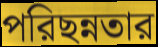
পরিছন্নতার